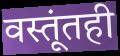
वस्तूंतही